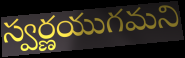
స్వర్ణయుగమని